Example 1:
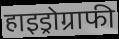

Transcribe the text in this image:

हाइड्रोग्राफी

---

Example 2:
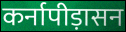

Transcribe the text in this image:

कर्नापीड़ासन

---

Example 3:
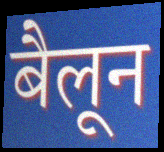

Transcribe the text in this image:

बैलून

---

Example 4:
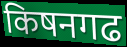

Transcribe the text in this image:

किषनगढ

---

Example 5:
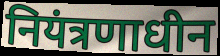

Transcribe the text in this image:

नियंत्रणाधीन